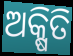
ଅକ୍ଷିତି